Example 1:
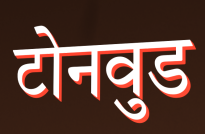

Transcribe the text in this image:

टोनवुड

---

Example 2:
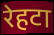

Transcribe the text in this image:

रेहटा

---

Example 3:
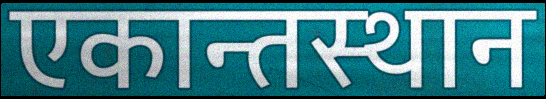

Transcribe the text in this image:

एकान्तस्थान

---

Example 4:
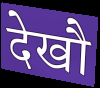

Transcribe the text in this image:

देखौ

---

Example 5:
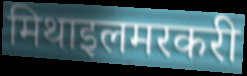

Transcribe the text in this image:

मिथाइलमरकरी